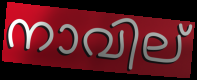
നാവില്